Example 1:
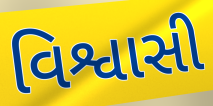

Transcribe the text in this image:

વિશ્વાસી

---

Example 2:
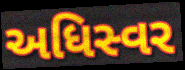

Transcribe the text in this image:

અધિસ્વર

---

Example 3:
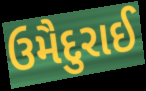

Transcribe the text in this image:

ઉમૈદુરાઈ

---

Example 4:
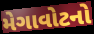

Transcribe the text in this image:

મેગાવોટનો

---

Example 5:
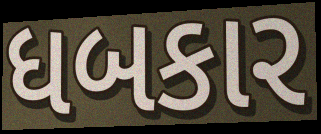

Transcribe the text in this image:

ધબકાર